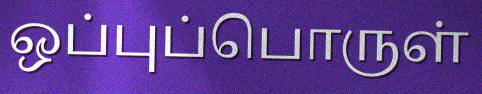
ஒப்புப்பொருள்